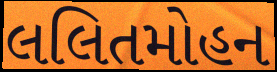
લલિતમોહન